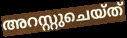
അറസ്റ്റുചെയ്ത്